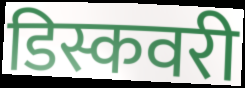
डिस्कवरी